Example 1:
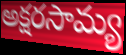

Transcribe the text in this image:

అక్షరసామ్య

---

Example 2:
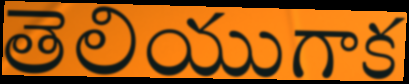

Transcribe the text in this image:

తెలియుగాక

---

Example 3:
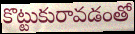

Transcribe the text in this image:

కొట్టుకురావడంతో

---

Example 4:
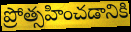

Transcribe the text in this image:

ప్రోత్సహించడానికి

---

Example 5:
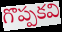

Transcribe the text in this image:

గొప్పకవి